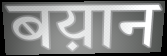
बय़ान